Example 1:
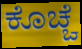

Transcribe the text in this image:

ಕೊಚ್ಚೆ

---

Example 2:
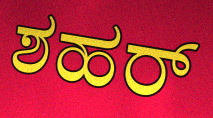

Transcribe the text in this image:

ಶಹರ್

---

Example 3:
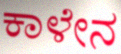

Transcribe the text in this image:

ಕಾಳೇನ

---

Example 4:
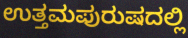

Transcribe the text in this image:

ಉತ್ತಮಪುರುಷದಲ್ಲಿ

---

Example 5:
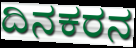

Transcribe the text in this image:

ದಿನಕರನ